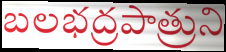
బలభద్రపాత్రుని